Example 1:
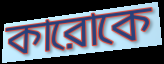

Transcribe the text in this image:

কারোকে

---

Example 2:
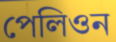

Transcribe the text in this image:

পেলিওন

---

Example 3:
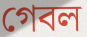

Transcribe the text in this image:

গেবল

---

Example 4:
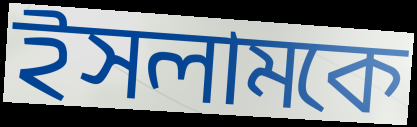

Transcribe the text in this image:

ইসলামকে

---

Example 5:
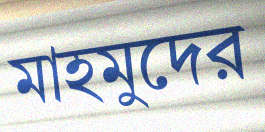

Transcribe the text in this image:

মাহমুদের